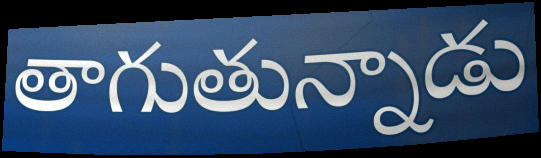
తాగుతున్నాడు